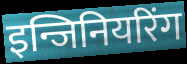
इन्जिनियरिंग